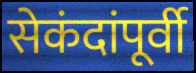
सेकंदांपूर्वी